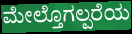
ಮೇಲ್ತೊಗಲ್ಪರೆಯ